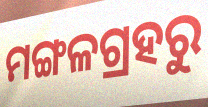
ମଙ୍ଗଳଗ୍ରହରୁ